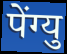
पेंग्यु